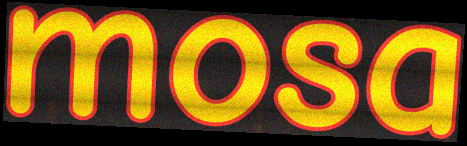
mosa